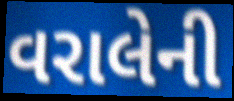
વરાલેની